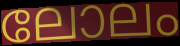
ലോലം